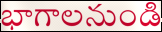
భాగాలనుండి